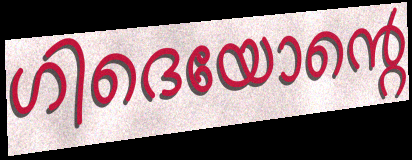
ഗിദെയോന്റെ